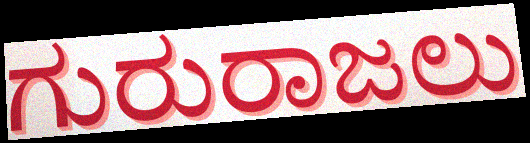
ಗುರುರಾಜಲು